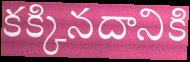
కక్కినదానికి